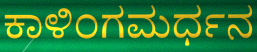
ಕಾಳಿಂಗಮರ್ಧನ